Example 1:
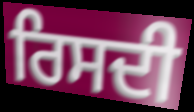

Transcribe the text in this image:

ਰਿਸਦੀ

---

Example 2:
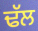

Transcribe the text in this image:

ਢੱਲ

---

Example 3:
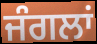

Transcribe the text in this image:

ਜੰਗਲਾਂ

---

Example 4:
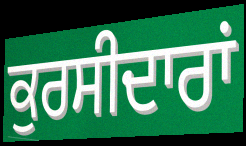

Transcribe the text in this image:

ਕੁਰਸੀਦਾਰਾਂ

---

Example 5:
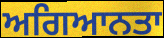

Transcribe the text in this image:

ਅਗਿਆਨਤਾ